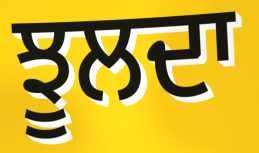
ਝੂਲਦਾ